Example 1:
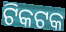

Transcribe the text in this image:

ଟିକଟକ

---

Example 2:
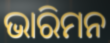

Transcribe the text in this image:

ଭାରିମନ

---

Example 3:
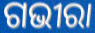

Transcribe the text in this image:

ଗଭୀରା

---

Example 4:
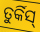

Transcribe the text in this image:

ତୁର୍କିସ୍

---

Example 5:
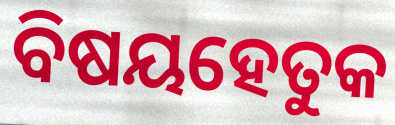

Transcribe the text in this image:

ବିଷୟହେତୁକ